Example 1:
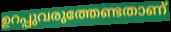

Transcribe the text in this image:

ഉറപ്പുവരുത്തേണ്ടതാണ്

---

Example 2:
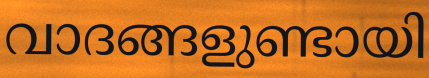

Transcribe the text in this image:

വാദങ്ങളുണ്ടായി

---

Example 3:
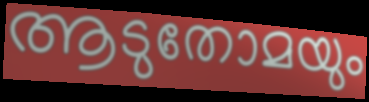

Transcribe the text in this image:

ആടുതോമയും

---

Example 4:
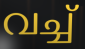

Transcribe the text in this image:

വച്ച്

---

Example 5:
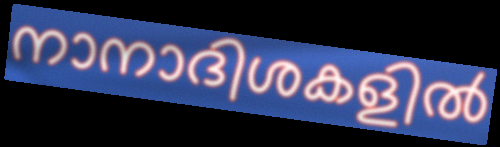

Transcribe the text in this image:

നാനാദിശകളിൽ